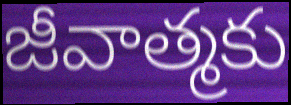
జీవాత్మకు